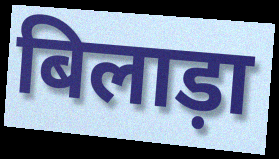
बिलाड़ा